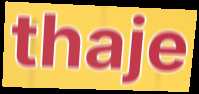
thaje